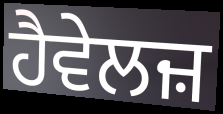
ਹੈਵੇਲਜ਼